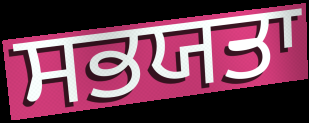
ਸਭਯਤਾ